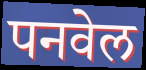
पनवेल